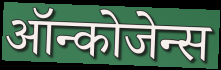
ऑन्कोजेन्स